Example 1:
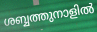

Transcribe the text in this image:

ശബ്ബത്തുനാളിൽ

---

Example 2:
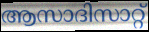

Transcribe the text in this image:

ആസാദിസാറ്റ്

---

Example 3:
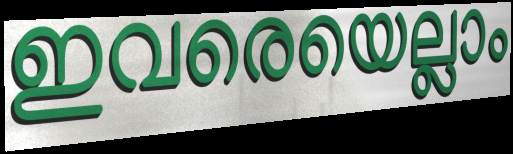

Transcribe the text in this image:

ഇവരെയെല്ലാം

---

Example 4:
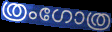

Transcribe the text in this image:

ത്രംഗോത്ര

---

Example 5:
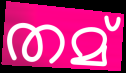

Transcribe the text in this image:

തമ്